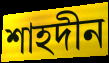
শাহদীন